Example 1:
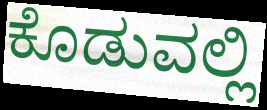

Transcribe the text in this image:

ಕೊಡುವಲ್ಲಿ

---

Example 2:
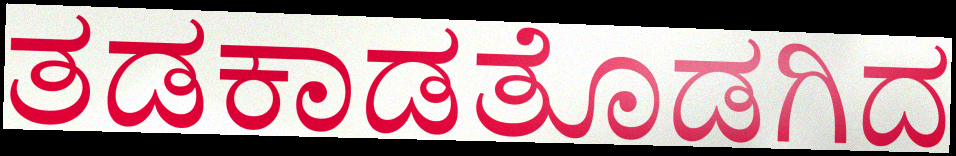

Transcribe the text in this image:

ತಡಕಾಡತೊಡಗಿದ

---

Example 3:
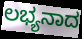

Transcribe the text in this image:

ಲಭ್ಯನಾದ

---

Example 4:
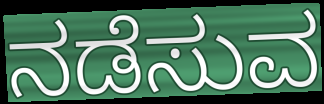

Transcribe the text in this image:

ನಡೆಸುವ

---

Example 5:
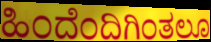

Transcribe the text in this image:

ಹಿಂದೆಂದಿಗಿಂತಲೂ